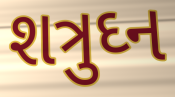
શત્રુઘ્ન